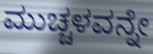
ಮುಚ್ಚಳವನ್ನೇ